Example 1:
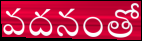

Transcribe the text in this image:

వదనంతో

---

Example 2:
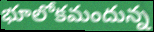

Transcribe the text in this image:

భూలోకమందున్న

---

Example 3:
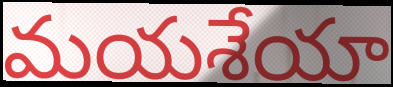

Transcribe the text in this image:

మయశేయా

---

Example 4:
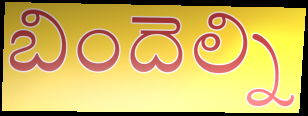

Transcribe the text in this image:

బిందెల్ని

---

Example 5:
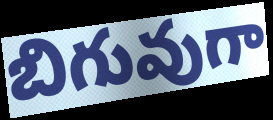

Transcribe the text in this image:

బిగువుగా